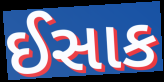
ઈસાક